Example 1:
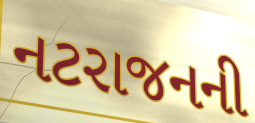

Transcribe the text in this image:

નટરાજનની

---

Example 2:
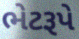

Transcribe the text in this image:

ભેટરૂપે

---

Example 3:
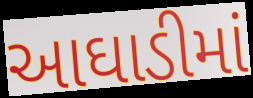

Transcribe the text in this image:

આઘાડીમાં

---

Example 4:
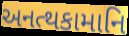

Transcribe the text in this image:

અનત્થકામાનિ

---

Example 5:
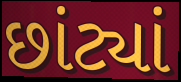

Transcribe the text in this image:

છાંટ્યાં